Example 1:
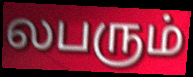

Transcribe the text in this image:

லபரும்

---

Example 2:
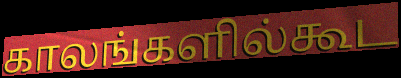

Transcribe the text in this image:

காலங்களில்கூட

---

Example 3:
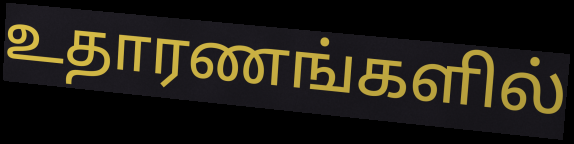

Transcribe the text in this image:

உதாரணங்களில்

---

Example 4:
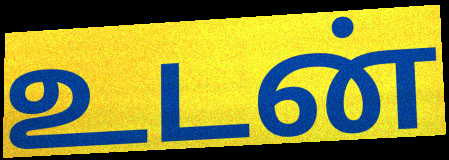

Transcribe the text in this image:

உடன்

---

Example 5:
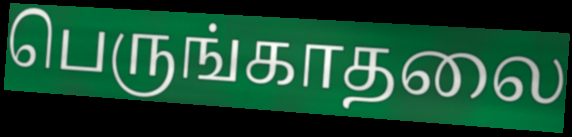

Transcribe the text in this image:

பெருங்காதலை